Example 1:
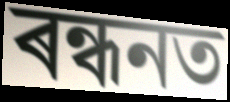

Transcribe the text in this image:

ৰন্ধনত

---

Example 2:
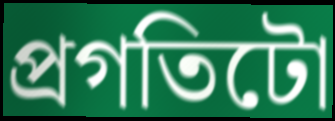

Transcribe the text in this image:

প্ৰগতিটো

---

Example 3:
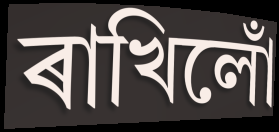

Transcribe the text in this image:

ৰাখিলোঁ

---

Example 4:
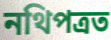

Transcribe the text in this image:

নথিপত্ৰত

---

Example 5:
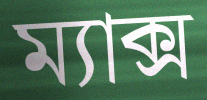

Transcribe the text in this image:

ম্যাক্স